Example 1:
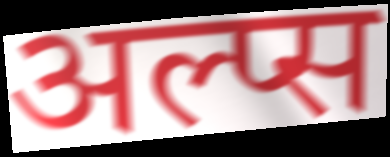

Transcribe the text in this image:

अल्प्स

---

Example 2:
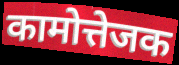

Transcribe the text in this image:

कामोत्तेजक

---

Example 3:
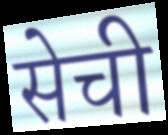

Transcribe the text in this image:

सेची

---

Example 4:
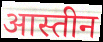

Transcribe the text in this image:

आस्तीन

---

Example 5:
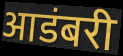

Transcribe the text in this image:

आडंबरी